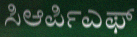
ಸಿಆರ್ಪಿಎಫ್